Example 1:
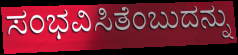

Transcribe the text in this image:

ಸಂಭವಿಸಿತೆಂಬುದನ್ನು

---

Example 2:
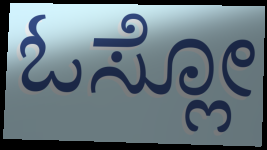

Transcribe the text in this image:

ಓಸ್ಲೋ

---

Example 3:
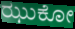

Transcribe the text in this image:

ಝುಕೋ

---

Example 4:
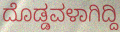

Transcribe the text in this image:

ದೊಡ್ಡವಳಾಗಿದ್ದಿ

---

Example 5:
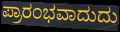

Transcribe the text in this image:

ಪ್ರಾರಂಭವಾದುದು